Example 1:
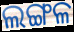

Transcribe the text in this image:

ଲଙ୍ଗଳ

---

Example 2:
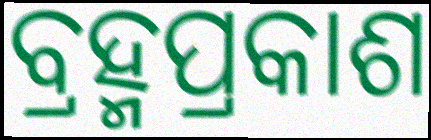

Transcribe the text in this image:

ବ୍ରହ୍ମପ୍ରକାଶ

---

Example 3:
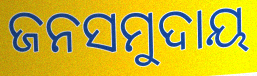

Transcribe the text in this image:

ଜନସମୁଦାୟ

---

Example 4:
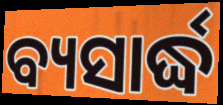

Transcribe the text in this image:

ବ୍ୟସାର୍ଦ୍ଧ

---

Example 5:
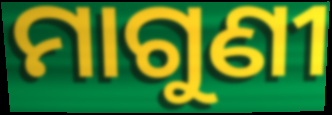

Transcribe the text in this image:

ମାଗୁଣୀ